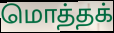
மொத்தக்